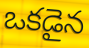
ఒకడైన